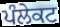
ਪੰਲੇਕਟ